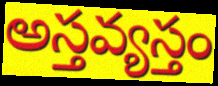
అస్తవ్యస్తం